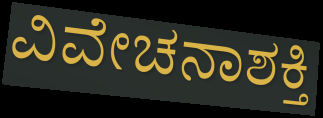
ವಿವೇಚನಾಶಕ್ತಿ